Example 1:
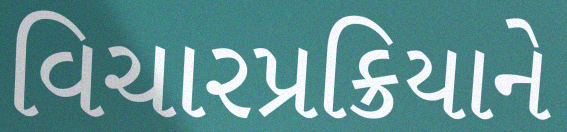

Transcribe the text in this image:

વિચારપ્રક્રિયાને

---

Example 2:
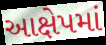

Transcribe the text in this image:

આક્ષેપમાં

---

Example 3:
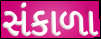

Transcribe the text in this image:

સંકાળા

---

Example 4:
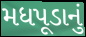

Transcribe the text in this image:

મધપૂડાનું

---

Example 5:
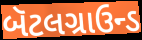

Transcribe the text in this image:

બૅટલગ્રાઉન્ડ